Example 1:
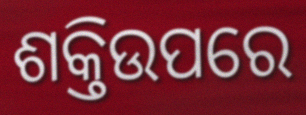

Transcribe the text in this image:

ଶକ୍ତିଉପରେ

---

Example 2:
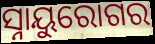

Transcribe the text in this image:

ସ୍ନାୟୁରୋଗର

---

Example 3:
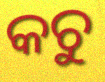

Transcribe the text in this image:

କଚୁ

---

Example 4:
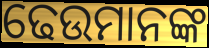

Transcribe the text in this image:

ଢେଉମାନଙ୍କ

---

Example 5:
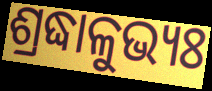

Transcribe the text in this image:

ଶ୍ରଦ୍ଧାଳୁଭ୍ୟଃ